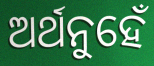
ଅର୍ଥନୁହେଁ